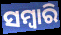
ସମ୍ବାରି